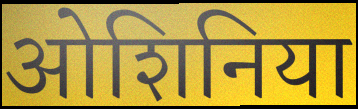
ओशिनिया